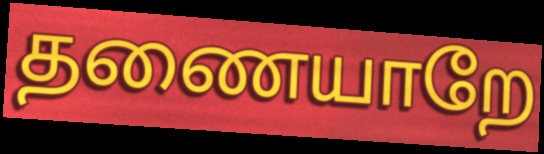
தணையாறே